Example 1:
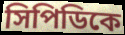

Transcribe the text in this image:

সিপিডিকে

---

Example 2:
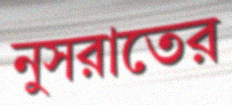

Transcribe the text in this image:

নুসরাতের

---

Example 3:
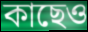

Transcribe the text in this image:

কাছেও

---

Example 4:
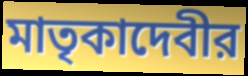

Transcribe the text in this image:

মাতৃকাদেবীর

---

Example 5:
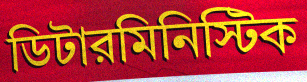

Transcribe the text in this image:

ডিটারমিনিস্টিক